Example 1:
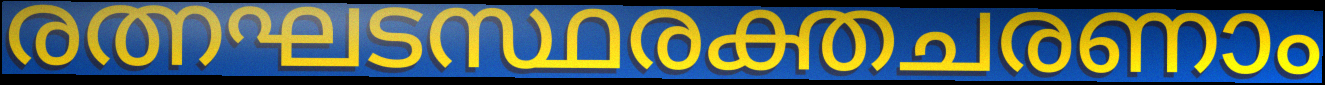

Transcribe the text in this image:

രത്നഘടസ്ഥരക്തചരണാം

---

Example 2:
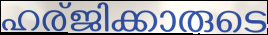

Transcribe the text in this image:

ഹര്ജിക്കാരുടെ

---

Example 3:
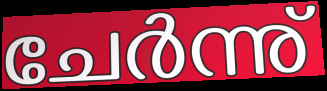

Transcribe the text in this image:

ചേർന്നു്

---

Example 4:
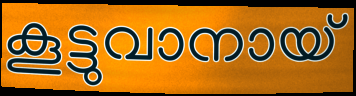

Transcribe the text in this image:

കൂട്ടുവാനായ്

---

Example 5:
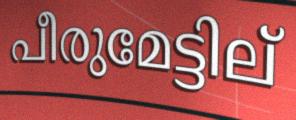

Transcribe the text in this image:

പീരുമേട്ടില്